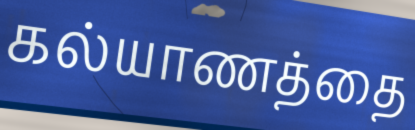
கல்யாணத்தை